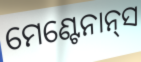
ମେଣ୍ଟେନାନ୍‌ସ